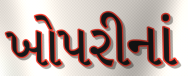
ખોપરીનાં